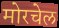
मोरचेल